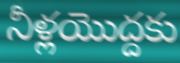
నీళ్లయొద్దకు